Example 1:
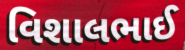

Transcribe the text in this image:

વિશાલભાઈ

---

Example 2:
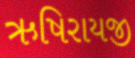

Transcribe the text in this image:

ઋષિરાયજી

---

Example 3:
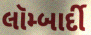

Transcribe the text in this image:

લૉમ્બાર્દી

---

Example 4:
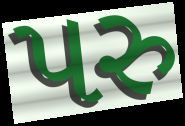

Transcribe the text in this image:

પરુ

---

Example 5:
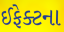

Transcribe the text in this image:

ઈફેક્ટના